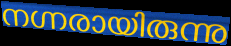
നഗ്നരായിരുന്നു